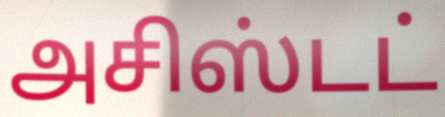
அசிஸ்டட்